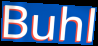
Buhl